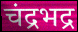
चंद्रभद्र